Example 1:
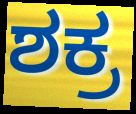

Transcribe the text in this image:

ಶಕ್ರ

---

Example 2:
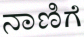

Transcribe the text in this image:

ನಾಣಿಗೆ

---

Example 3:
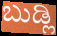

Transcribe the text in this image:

ಬುಡ್ಲಿ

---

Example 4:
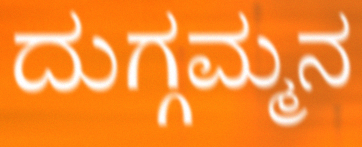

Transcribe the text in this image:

ದುಗ್ಗಮ್ಮನ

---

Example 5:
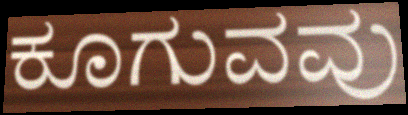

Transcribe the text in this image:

ಕೂಗುವವು